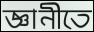
জ্ঞানীতে